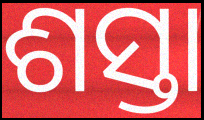
ଶସ୍ତା